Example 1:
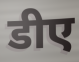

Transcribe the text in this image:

डीए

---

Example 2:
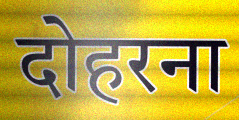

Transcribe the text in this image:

दोहरना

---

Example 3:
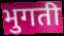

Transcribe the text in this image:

भुगती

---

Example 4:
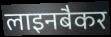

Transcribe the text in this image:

लाइनबैकर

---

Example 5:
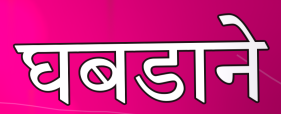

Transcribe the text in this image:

घबडाने